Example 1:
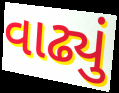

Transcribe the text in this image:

વાઢ્યું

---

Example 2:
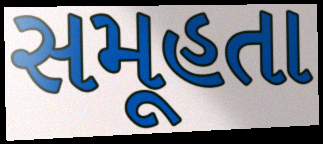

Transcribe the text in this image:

સમૂહતા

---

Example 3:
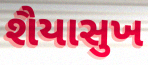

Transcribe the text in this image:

શૈયાસુખ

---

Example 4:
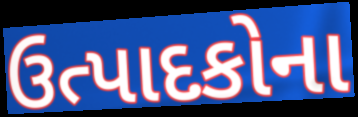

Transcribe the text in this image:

ઉત્પાદકોના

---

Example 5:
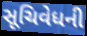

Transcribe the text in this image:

સૂચિવેધની